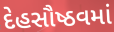
દેહસૌષ્ઠવમાં